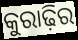
କୁରାଢ଼ିର